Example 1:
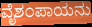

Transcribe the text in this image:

ವೈಶಂಪಾಯನು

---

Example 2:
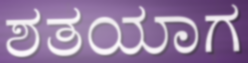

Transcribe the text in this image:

ಶತಯಾಗ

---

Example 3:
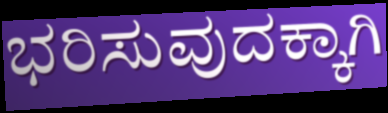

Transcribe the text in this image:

ಭರಿಸುವುದಕ್ಕಾಗಿ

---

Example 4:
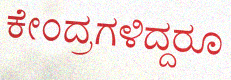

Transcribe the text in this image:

ಕೇಂದ್ರಗಳಿದ್ದರೂ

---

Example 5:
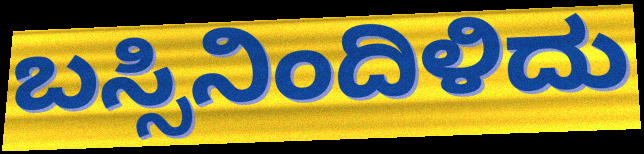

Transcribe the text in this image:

ಬಸ್ಸಿನಿಂದಿಳಿದು